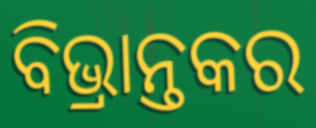
ବିଭ୍ରାନ୍ତକର